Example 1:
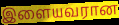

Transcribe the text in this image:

இளையவரான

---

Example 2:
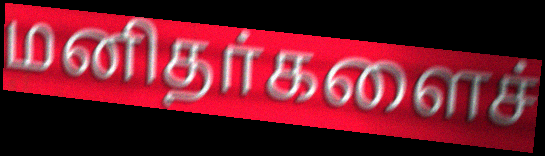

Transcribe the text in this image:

மனிதர்களைச்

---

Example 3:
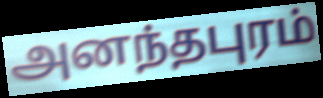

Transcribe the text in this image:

அனந்தபுரம்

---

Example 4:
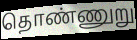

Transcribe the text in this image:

தொண்ணுறு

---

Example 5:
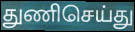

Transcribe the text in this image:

துணிசெய்து